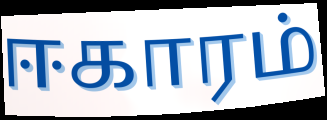
ஈகாரம்